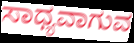
ಸಾಧ್ಯವಾಗುವ